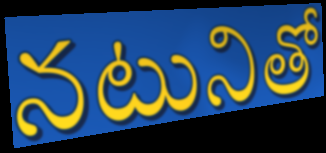
నటునితో